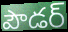
పౌడర్